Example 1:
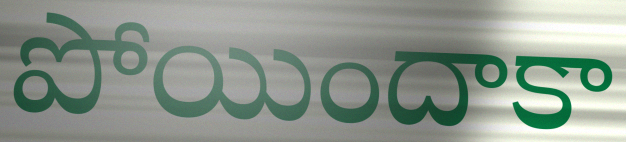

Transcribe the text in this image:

పోయిందాకా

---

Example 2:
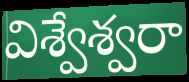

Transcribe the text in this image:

విశ్వేశ్వరా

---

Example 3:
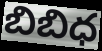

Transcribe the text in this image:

బిబిధ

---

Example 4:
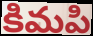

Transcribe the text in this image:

కిమపి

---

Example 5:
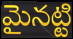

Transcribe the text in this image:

మైనట్టి